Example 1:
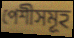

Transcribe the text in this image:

পেশীসমূহ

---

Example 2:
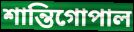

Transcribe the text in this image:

শান্তিগোপাল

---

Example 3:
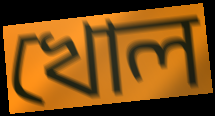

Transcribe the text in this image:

খোল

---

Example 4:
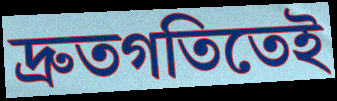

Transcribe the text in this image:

দ্রুতগতিতেই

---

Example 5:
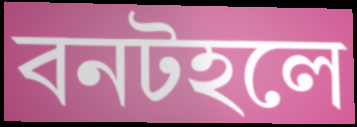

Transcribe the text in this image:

বনটহলে